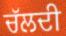
ਚੱਲਦੀ